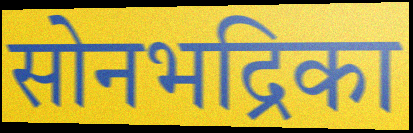
सोनभद्रिका